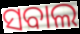
ସବାଲ